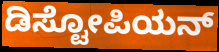
ಡಿಸ್ಟೋಪಿಯನ್